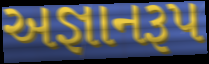
અજ્ઞાનરૂપ